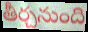
తీర్చనుంది